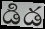
డిడ